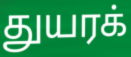
துயரக்